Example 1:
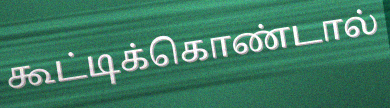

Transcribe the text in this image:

கூட்டிக்கொண்டால்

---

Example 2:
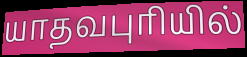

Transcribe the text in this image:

யாதவபுரியில்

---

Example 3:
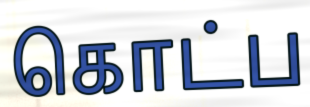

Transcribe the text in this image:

கொட்ப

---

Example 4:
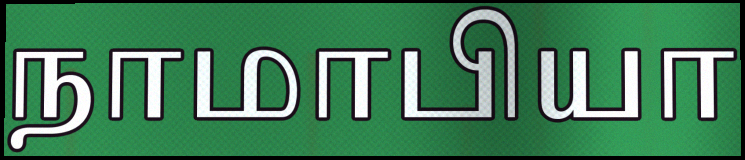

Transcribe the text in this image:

நாமாபியா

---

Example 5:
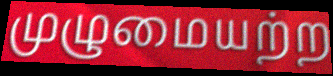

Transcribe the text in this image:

முழுமையற்ற